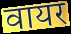
वायर